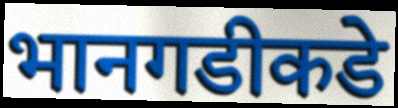
भानगडीकडे